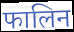
फालिन